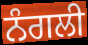
ਨੰਗਲੀ